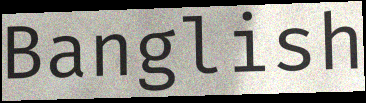
Banglish